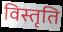
विस्तृति